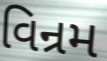
વિન્રમ